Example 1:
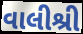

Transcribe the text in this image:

વાલીશ્રી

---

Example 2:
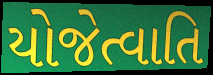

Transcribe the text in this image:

યોજેત્વાતિ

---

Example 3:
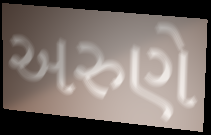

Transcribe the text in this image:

અરુણે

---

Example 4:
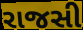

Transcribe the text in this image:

રાજસી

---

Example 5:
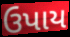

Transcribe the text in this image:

ઉપાય